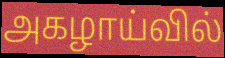
அகழாய்வில்